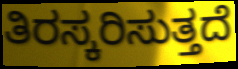
ತಿರಸ್ಕರಿಸುತ್ತದೆ